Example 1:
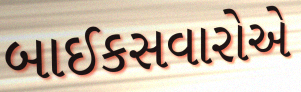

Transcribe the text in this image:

બાઈકસવારોએ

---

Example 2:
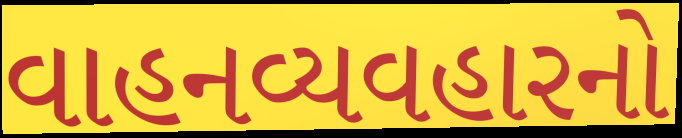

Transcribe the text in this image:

વાહનવ્યવહારનો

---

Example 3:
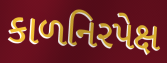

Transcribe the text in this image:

કાળનિરપેક્ષ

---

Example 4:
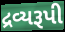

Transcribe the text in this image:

દ્રવ્યરૂપી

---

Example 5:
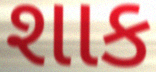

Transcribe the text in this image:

શાક